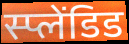
स्प्लेंडिड